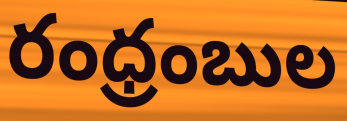
రంధ్రంబుల